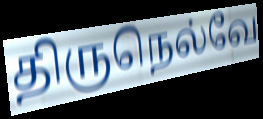
திருநெல்வே